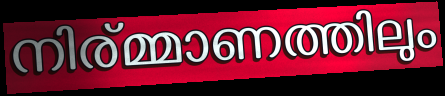
നിര്മ്മാണത്തിലും